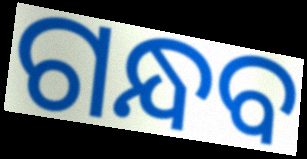
ଗନ୍ଧବ